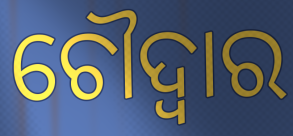
ଚୌଦ୍ବାର